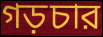
গড়চার